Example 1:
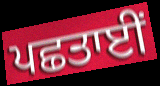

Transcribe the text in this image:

ਪਛਤਾਈਂ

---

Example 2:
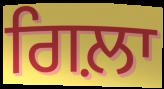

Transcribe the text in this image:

ਗਿਲ਼ਾ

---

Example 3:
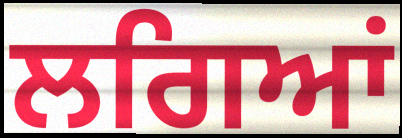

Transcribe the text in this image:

ਲਗਿਆਂ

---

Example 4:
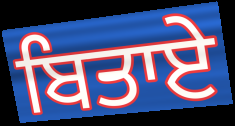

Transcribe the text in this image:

ਬਿਤਾਏ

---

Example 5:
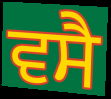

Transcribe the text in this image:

ਵਸੈ